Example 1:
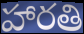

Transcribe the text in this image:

హారతి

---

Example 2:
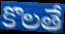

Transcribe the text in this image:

కొలతే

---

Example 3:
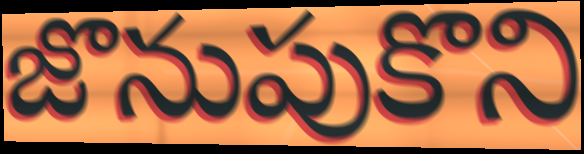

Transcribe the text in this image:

జొనుపుకొని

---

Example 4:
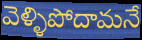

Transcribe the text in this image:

వెళ్ళిపోదామనే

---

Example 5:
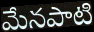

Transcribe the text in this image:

మేనపాటి